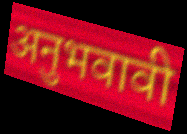
अनुभवावी